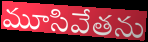
మూసివేతను